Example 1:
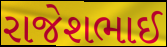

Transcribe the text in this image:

રાજેશભાઈ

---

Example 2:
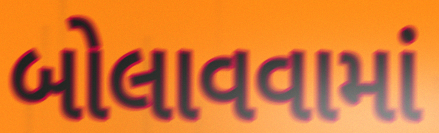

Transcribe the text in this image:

બોલાવવામાં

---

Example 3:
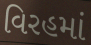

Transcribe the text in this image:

વિરહમાં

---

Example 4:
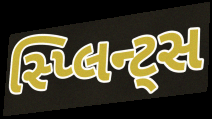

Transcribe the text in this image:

સ્પ્લિન્ટ્સ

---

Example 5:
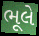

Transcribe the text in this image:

ભૂલે